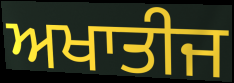
ਅਖਾਤੀਜ